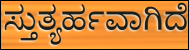
ಸ್ತುತ್ಯರ್ಹವಾಗಿದೆ